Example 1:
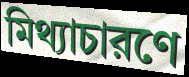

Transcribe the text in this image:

মিথ্যাচারণে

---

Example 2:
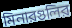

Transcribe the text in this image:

মিনারগুলির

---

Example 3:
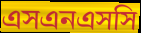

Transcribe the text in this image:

এসএনএসসি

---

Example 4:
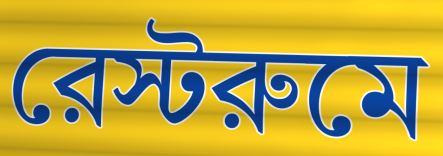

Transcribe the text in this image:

রেস্টরুমে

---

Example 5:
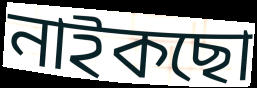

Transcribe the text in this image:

নাইকছো